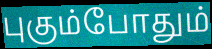
புகும்போதும்